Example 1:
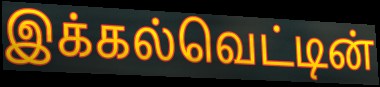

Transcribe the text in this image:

இக்கல்வெட்டின்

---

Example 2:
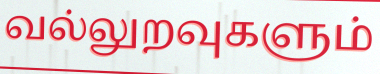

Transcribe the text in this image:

வல்லுறவுகளும்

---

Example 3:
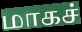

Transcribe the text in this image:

மாகச்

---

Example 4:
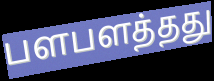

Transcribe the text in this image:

பளபளத்தது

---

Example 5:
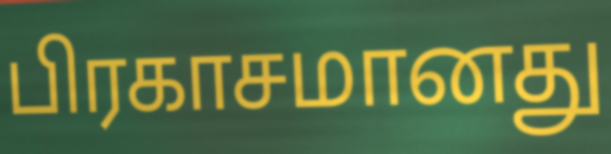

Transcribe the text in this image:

பிரகாசமானது